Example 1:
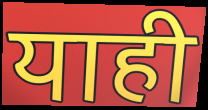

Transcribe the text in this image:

याही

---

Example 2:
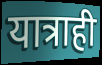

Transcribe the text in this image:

यात्राही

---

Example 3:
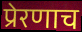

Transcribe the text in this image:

प्रेरणाच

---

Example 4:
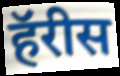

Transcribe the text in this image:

हॅरीस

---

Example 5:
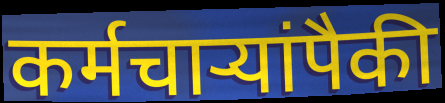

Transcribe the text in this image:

कर्मचार्‍यांपैकी